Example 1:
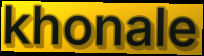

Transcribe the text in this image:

khonale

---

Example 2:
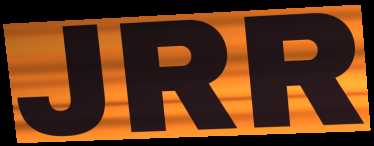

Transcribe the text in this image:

JRR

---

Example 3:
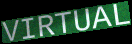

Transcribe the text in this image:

VIRTUAL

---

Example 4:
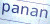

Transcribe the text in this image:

panan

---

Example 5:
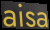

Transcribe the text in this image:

aisa